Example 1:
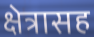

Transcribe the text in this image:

क्षेत्रासह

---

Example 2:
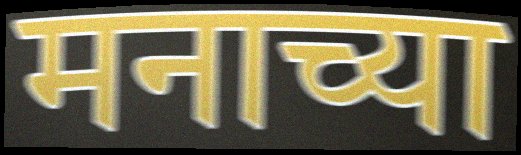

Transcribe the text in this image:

मनाच्या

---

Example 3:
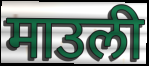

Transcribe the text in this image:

माउली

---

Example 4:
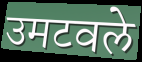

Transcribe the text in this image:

उमटवले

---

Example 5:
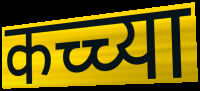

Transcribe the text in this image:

कच्च्या